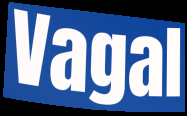
Vagal